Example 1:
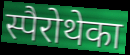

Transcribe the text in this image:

स्पैरोथेका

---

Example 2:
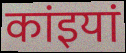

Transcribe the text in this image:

कांइयां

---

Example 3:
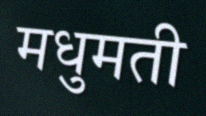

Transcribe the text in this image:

मधुमती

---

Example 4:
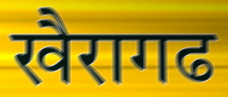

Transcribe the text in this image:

खैरागढ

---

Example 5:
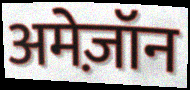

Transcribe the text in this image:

अमेज़ॉन